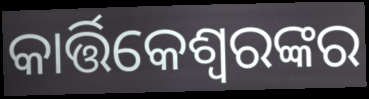
କାର୍ତ୍ତିକେଶ୍ୱରଙ୍କର